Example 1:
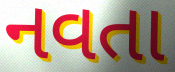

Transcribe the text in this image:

નવતા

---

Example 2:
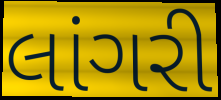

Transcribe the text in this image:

લાંગરી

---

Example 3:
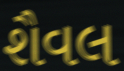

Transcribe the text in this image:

શૈવલ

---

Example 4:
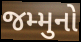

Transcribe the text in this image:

જમ્મુનો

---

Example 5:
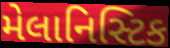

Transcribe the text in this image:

મેલાનિસ્ટિક